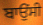
ਬਾਉਂਸੀ